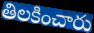
తిలకించారు